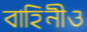
বাহিনীও